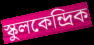
স্কুলকেন্দ্রিক